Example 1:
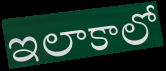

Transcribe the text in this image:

ఇలాకాలో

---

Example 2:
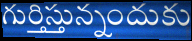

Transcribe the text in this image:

గుర్తిస్తున్నందుకు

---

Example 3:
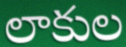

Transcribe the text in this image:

లాకుల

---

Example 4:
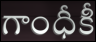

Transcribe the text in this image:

గాంధీకీ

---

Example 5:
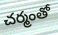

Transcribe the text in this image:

చర్మంతో